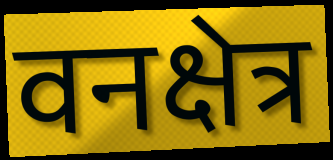
वनक्षेत्र